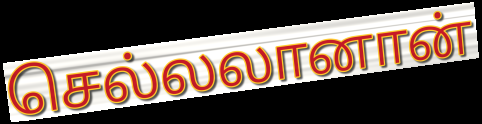
செல்லலானான்